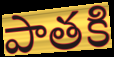
పాతకి